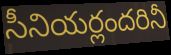
సీనియర్లందరినీ